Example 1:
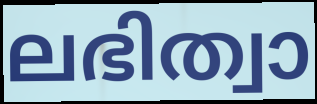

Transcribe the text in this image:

ലഭിത്വാ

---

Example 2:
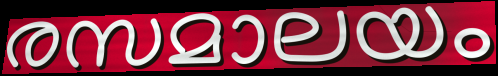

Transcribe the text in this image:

രസമാലയം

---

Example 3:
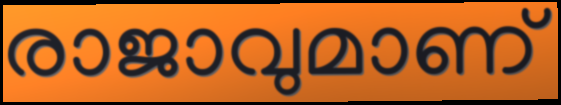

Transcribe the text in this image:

രാജാവുമാണ്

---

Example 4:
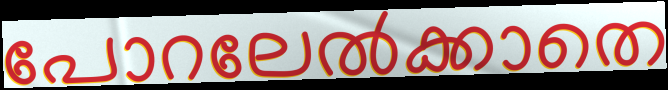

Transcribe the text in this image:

പോറലേൽക്കാതെ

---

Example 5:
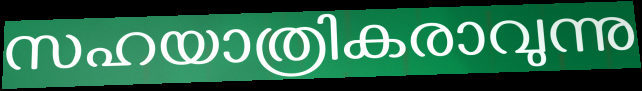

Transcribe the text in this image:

സഹയാത്രികരാവുന്നു